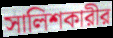
সালিশকারীর